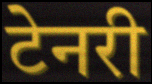
टेनरी